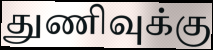
துணிவுக்கு